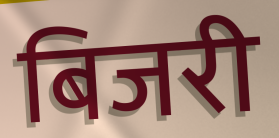
बिजरी